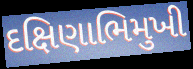
દક્ષિણાભિમુખી